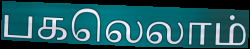
பகலெலாம்